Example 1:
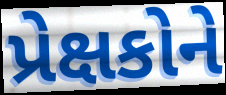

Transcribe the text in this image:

પ્રેક્ષકોને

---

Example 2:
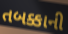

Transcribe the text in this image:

તબક્કાની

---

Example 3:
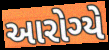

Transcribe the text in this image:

આરોગ્યે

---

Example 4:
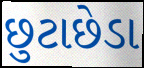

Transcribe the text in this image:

છુટાછેડા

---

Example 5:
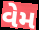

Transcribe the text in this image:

વેમ